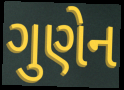
ગુણેન